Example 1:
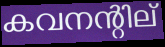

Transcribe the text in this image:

കവനന്റില്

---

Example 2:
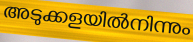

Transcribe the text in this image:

അടുക്കളയിൽനിന്നും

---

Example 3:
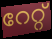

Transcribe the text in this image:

റേറ്റ്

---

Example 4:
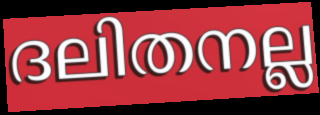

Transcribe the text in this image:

ദലിതനല്ല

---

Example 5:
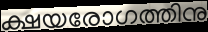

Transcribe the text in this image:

ക്ഷയരോഗത്തിനു